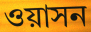
ওয়াসন